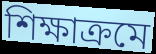
শিক্ষাক্রমে